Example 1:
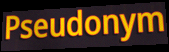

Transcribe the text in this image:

Pseudonym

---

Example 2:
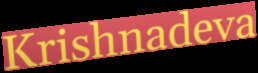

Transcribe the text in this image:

Krishnadeva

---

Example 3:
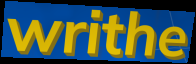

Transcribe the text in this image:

writhe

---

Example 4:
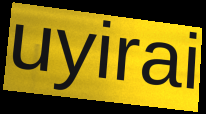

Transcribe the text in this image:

uyirai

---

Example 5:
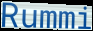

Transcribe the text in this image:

Rummi